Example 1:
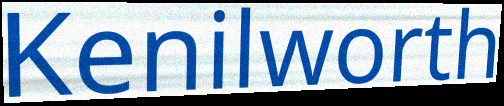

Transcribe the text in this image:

Kenilworth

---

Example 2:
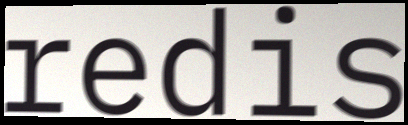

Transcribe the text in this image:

redis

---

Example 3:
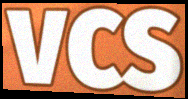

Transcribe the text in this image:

vcs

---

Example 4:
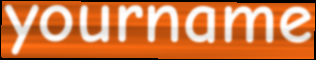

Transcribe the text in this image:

yourname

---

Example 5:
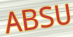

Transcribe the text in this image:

ABSU